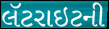
લૅટરાઇટની